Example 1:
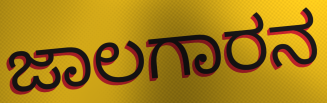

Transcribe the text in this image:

ಜಾಲಗಾರನ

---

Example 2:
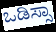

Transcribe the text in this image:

ಒಡಿಸ್ಸಾ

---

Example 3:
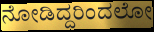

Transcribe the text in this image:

ನೋಡಿದ್ದರಿಂದಲೋ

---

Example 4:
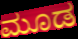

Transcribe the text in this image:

ಮೂಡ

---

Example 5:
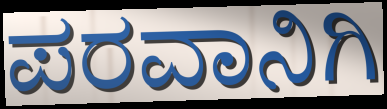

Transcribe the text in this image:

ಪರವಾನಿಗಿ